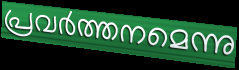
പ്രവർത്തനമെന്നു